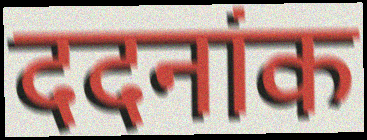
ददनांक